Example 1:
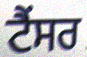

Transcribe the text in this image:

ਟੈਂਸਰ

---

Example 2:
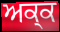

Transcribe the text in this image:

ਅਕ੍ਕ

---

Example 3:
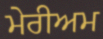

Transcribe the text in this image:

ਮੇਰੀਅਮ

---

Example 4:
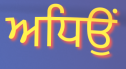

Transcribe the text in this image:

ਅਧਿਉਂ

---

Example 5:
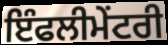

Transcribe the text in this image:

ਇੰਫਲੀਮੇਂਟਰੀ